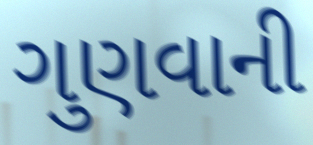
ગુણવાની